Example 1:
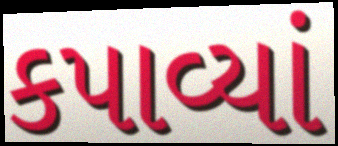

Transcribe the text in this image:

કપાવ્યાં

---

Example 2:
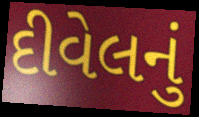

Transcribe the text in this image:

દીવેલનું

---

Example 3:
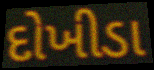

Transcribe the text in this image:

દોખીડા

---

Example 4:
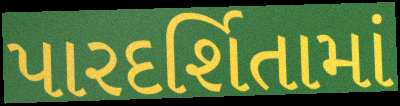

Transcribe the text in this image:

પારદર્શિતામાં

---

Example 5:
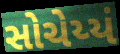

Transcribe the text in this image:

સોચેય્યં